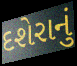
દશેરાનું